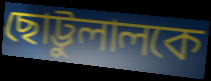
ছোট্টুলালকে